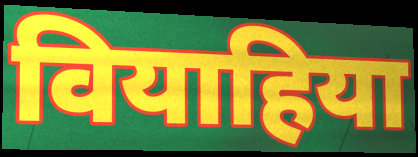
वियाहिया